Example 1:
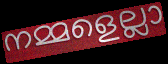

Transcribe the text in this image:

നമ്മളെല്ലാ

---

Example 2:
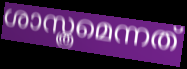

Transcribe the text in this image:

ശാസ്ത്രമെന്നത്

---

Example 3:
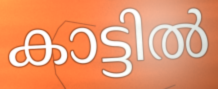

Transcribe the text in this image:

കാട്ടിൽ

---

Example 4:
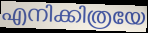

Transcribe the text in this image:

എനിക്കിത്രയേ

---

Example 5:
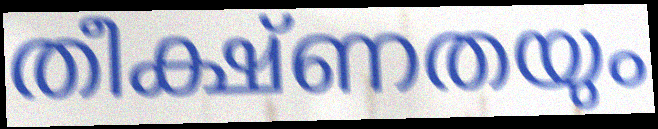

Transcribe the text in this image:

തീക്ഷ്‌ണതയും